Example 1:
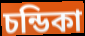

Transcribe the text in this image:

চন্ডিকা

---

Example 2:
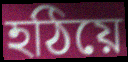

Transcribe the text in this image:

হঠিয়ে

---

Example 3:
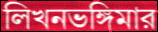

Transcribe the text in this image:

লিখনভঙ্গিমার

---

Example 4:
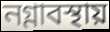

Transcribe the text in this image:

নগ্নাবস্থায়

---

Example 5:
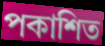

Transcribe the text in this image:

পকাশিত